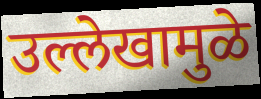
उल्लेखामुळे